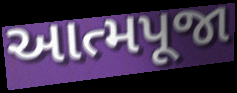
આત્મપૂજા